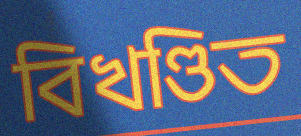
বিখণ্ডিত